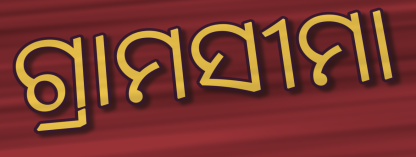
ଗ୍ରାମସୀମା